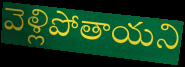
వెళ్లిపోతాయని